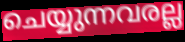
ചെയ്യുന്നവരല്ല